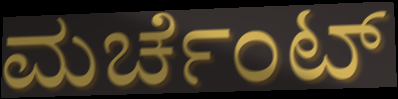
ಮರ್ಚೆಂಟ್